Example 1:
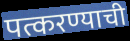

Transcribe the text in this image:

पत्करण्याची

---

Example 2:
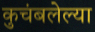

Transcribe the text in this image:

कुचंबलेल्या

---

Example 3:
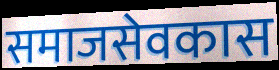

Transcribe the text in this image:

समाजसेवकास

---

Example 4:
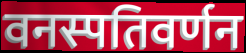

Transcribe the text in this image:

वनस्पतिवर्णन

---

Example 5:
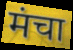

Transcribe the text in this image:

मंचा